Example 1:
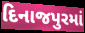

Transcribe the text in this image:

દિનાજપુરમાં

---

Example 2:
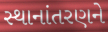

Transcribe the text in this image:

સ્થાનાંતરણને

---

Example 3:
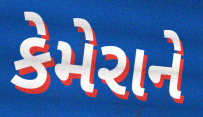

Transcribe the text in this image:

કેમેરાને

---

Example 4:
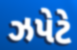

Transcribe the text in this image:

ઝપેટે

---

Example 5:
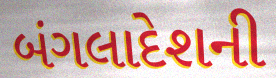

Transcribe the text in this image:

બંગલાદેશની